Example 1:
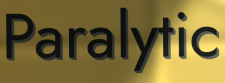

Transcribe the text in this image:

Paralytic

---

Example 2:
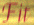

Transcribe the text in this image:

Fit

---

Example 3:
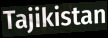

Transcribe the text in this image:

Tajikistan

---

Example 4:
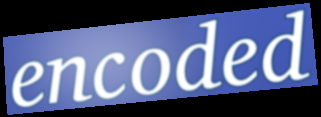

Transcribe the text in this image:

encoded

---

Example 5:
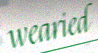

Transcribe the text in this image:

wearied